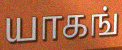
யாகங்